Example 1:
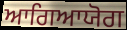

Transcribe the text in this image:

ਆਗਿਆਯੋਗ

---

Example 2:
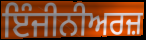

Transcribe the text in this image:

ਇੰਜੀਨੀਅਰਜ਼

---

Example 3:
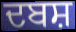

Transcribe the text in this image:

ਦਬਸ਼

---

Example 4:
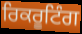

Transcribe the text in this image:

ਰਿਕਰੂਟਿੰਗ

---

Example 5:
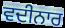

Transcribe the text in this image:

ਵਦੀਨਾਰ